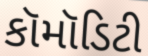
કૉમૉડિટી